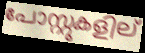
പോസ്റ്റുകളില്